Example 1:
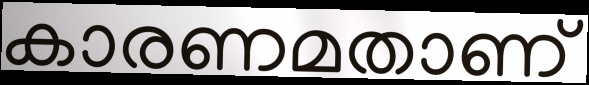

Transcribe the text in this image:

കാരണമതാണ്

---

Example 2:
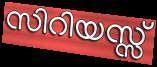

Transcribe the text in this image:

സിറിയസ്സ്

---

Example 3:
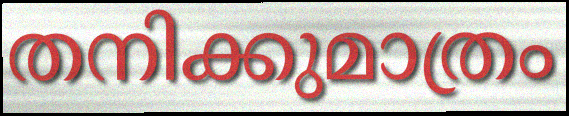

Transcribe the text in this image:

തനിക്കുമാത്രം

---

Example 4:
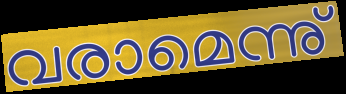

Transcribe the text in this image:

വരാമെന്നു്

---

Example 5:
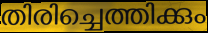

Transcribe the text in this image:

തിരിച്ചെത്തിക്കും